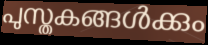
പുസ്തകങ്ങൾക്കും